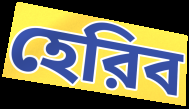
হেরিব